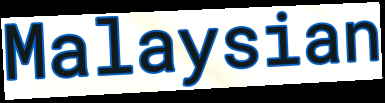
Malaysian